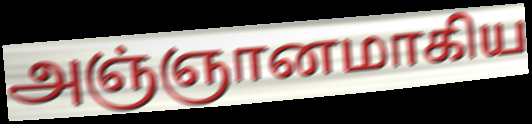
அஞ்ஞானமாகிய